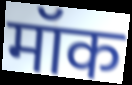
मॉक